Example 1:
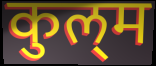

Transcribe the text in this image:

कुल्म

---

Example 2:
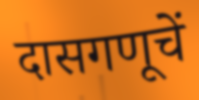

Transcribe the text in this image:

दासगणूचें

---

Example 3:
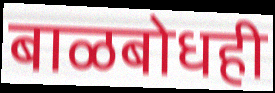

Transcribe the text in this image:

बाळबोधही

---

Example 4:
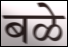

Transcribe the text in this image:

बळे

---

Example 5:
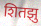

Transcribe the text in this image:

शितझु